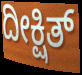
ದೀಕ್ಷಿತ್